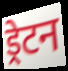
ड्रेटन